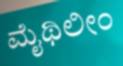
ಮೈಥಿಲೀಂ